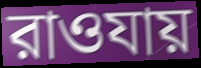
রাওযায়